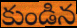
కుండిన